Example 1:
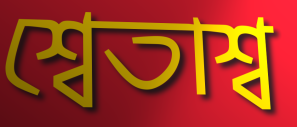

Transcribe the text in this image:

শ্বেতাশ্ব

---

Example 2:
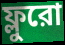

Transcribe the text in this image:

ফ্লুরো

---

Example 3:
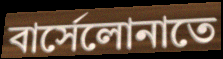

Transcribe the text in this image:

বার্সেলোনাতে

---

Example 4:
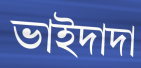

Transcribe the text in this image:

ভাইদাদা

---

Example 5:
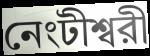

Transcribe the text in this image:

নেংটীশ্বরী